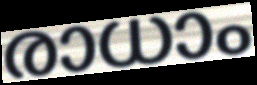
രാധാം